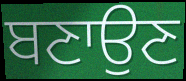
ਬਣਾਉਣ